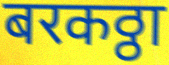
बरकठ्ठा